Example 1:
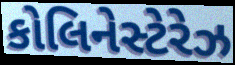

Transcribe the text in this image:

કોલિનેસ્ટેરેઝ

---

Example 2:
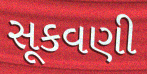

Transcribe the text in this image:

સૂકવણી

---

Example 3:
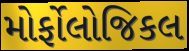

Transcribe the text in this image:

મોર્ફોલોજિકલ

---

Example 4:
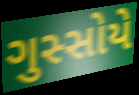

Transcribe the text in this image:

ગુસ્સોયે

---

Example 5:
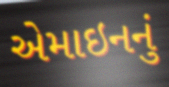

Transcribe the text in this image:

એમાઇનનું